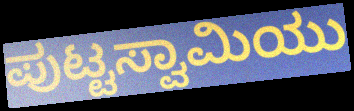
ಪುಟ್ಟಸ್ವಾಮಿಯು